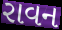
રાવન